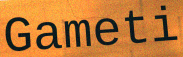
Gameti